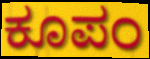
ಕೂಪಂ